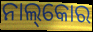
ନାଲ୍‌କୋର